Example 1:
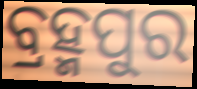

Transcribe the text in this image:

ବ୍ରହ୍ମପୁର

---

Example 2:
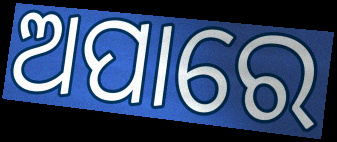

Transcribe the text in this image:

ଅପାରେ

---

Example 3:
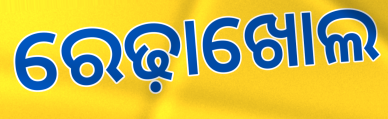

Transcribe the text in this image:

ରେଢ଼ାଖୋଲ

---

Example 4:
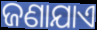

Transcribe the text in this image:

ଜଣାଯାଏ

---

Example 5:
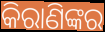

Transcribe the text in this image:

କିରାଣିଙ୍କର